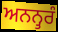
ਅਨਨ੍ਤਰੰ